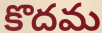
కొదమ